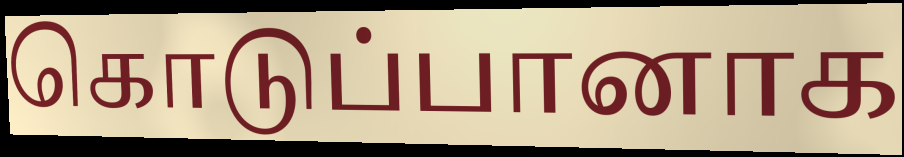
கொடுப்பானாக